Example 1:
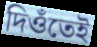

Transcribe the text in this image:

দিওঁতেই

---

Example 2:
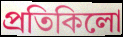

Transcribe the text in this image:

প্ৰতিকিলো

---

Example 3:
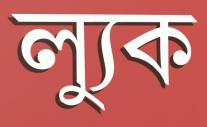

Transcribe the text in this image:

ল্যুক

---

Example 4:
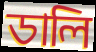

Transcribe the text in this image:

ডালি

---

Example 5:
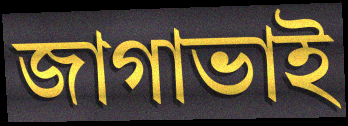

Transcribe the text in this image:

জাগাভাই